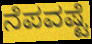
ನೆಪವಷ್ಟೆ